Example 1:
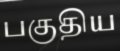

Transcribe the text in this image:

பகுதிய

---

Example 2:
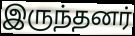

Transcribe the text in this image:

இருந்தனர்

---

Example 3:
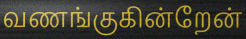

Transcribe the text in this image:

வணங்குகின்றேன்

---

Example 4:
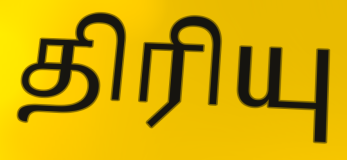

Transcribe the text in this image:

திரியு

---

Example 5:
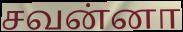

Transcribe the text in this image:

சவன்னா